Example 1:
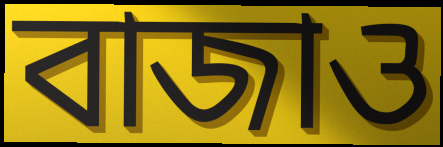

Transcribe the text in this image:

বাজাও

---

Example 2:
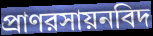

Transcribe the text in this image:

প্রাণরসায়নবিদ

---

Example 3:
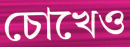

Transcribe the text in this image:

চোখেও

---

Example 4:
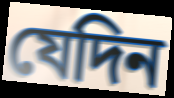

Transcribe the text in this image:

যেদিন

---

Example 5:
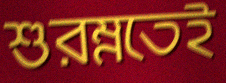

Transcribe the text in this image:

শুরম্নতেই